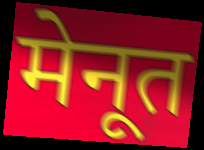
मेनूत